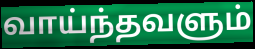
வாய்ந்தவளும்